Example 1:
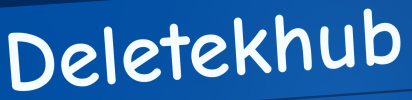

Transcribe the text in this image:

Deletekhub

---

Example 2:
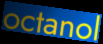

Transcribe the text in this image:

octanol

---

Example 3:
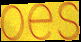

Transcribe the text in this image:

oes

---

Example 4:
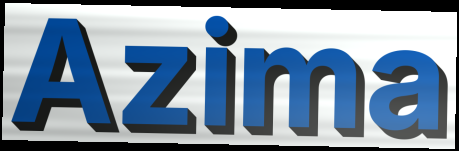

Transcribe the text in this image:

Azima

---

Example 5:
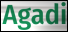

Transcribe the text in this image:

Agadi